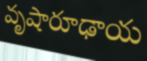
వృషారూఢాయ